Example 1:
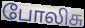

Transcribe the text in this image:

போலிசு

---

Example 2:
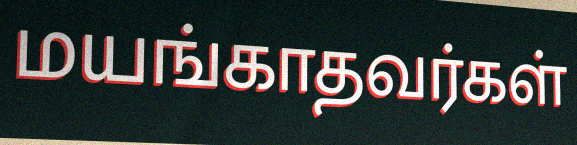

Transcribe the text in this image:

மயங்காதவர்கள்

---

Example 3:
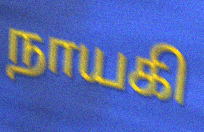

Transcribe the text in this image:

நாயகி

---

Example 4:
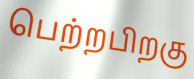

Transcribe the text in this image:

பெற்றபிறகு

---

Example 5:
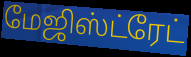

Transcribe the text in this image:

மேஜிஸ்ட்ரேட்